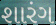
શારંગ